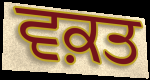
ਵਕ਼ਤ